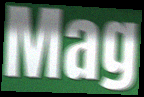
Mag